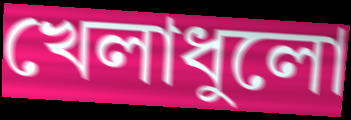
খেলাধুলো